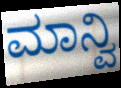
ಮಾನ್ವಿ